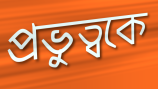
প্রভুত্বকে